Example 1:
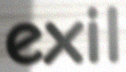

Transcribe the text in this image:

exil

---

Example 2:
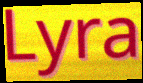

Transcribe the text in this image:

Lyra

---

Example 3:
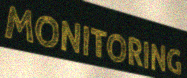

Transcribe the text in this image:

MONITORING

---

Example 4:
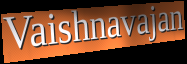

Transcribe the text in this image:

Vaishnavajan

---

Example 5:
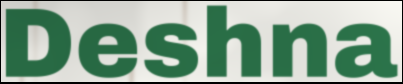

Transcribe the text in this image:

Deshna